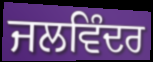
ਜਲਵਿੰਦਰ